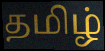
தமிழ்